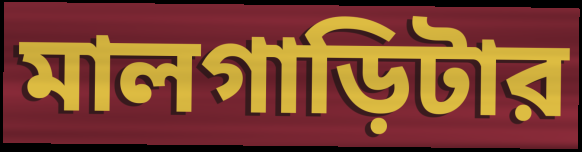
মালগাড়িটার